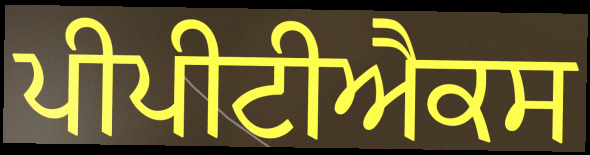
ਪੀਪੀਟੀਐਕਸ